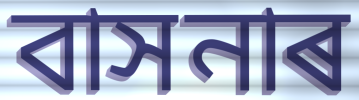
বাসনাৰ